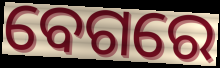
ବେଗରେ